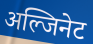
अल्जिनेट